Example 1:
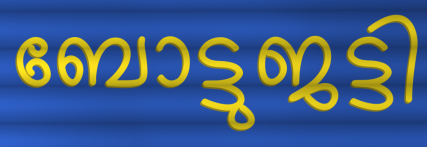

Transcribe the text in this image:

ബോട്ടുജട്ടി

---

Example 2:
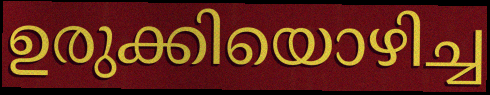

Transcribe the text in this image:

ഉരുക്കിയൊഴിച്ച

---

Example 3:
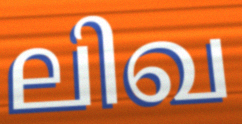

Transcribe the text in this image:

ലിഖ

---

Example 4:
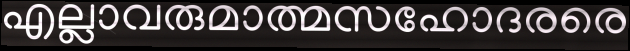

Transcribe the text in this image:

എല്ലാവരുമാത്മസഹോദരരെ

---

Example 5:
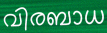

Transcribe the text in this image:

വിരബാധ